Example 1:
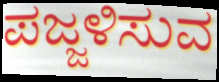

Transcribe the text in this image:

ಪಜ್ಜಳಿಸುವ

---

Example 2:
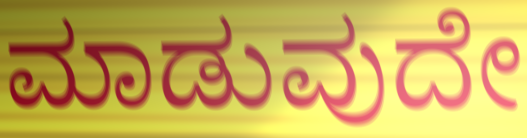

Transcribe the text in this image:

ಮಾಡುವುದೇ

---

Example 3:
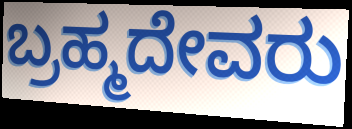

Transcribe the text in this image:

ಬ್ರಹ್ಮದೇವರು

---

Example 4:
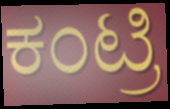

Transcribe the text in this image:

ಕಂಟ್ರಿ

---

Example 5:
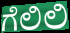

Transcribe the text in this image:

ಗೆಲಿಲಿ